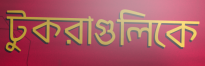
টুকরাগুলিকে